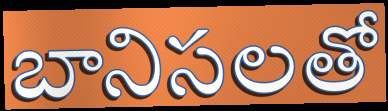
బానిసలతో